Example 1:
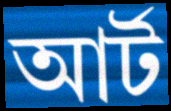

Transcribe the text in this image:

আর্ট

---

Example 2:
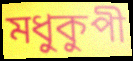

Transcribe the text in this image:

মধুকুপী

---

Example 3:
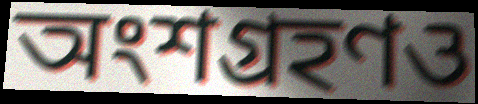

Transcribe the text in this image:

অংশগ্রহণও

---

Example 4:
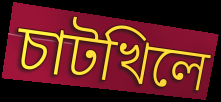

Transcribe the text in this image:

চাটখিলে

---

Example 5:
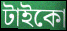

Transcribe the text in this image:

টাইকো